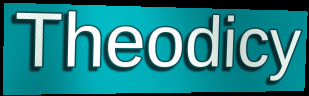
Theodicy